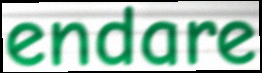
endare